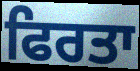
ਫਿਰਤਾ